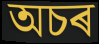
অচৰ